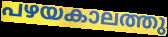
പഴയകാലത്തു